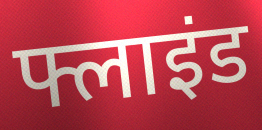
फ्लाइंड